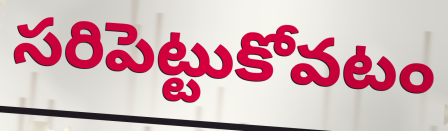
సరిపెట్టుకోవటం